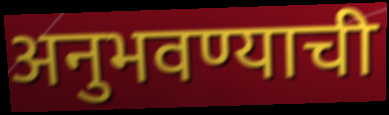
अनुभवण्याची